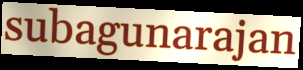
subagunarajan